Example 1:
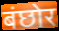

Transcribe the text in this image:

बंछोर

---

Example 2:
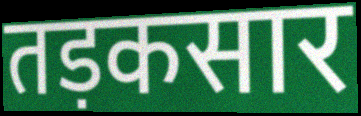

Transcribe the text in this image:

तड़कसार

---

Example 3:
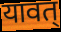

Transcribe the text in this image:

यावत्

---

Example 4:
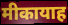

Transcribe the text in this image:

मीकायाह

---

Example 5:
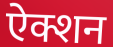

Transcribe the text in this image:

ऐक्शन